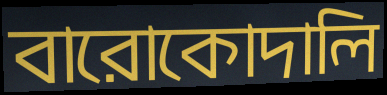
বারোকোদালি